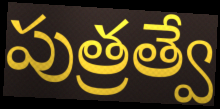
పుత్రత్వే